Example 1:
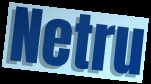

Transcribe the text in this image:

Netru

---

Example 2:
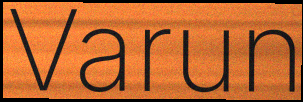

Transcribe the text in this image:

Varun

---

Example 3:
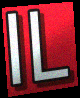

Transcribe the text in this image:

IL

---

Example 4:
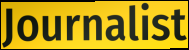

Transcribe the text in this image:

Journalist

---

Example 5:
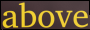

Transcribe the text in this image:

above